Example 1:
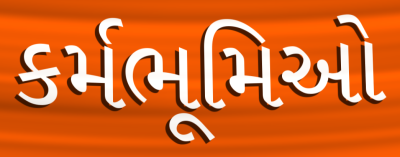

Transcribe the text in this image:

કર્મભૂમિઓ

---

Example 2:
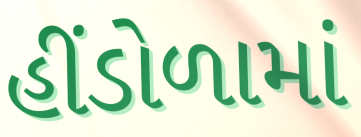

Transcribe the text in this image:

હીંડોળામાં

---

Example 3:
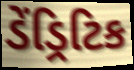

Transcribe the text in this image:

ડેંડ્રિટિક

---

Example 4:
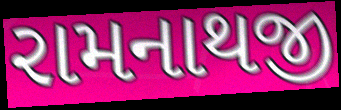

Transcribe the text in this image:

રામનાથજી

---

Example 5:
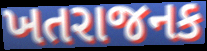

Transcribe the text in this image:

ખતરાજનક